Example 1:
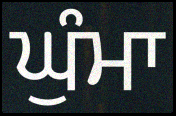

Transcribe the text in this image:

ਘੁੰਮਾ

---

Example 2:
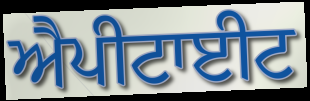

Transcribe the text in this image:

ਐਪੀਟਾਈਟ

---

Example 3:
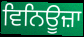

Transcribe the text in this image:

ਵਿਨਿਊਜ਼ਾ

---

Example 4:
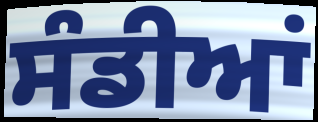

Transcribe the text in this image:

ਸੰਡੀਆਂ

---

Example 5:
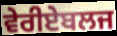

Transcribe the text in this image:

ਵੇਰੀਏਬਲਜ